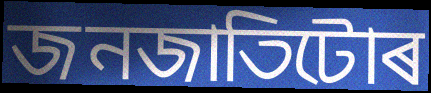
জনজাতিটোৰ